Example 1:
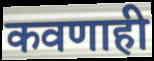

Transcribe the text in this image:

कवणाही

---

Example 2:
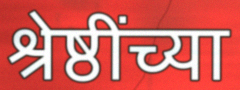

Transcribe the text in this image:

श्रेष्ठींच्या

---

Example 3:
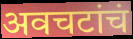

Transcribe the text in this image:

अवचटांचं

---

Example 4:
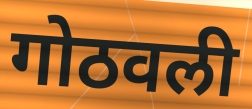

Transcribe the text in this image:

गोठवली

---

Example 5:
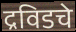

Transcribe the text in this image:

द्रविडचे